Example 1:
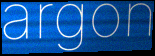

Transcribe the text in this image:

argon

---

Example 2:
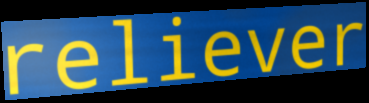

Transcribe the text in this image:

reliever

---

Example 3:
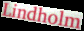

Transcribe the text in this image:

Lindholm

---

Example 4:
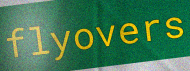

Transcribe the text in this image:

flyovers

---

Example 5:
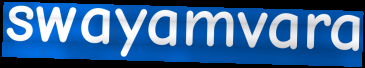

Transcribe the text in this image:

swayamvara